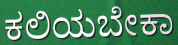
ಕಲಿಯಬೇಕಾ